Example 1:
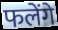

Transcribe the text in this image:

फलेंगे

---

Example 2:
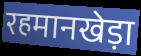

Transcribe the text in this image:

रहमानखेड़ा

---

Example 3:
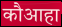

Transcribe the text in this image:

कौआहा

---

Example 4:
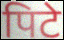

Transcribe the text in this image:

पिटे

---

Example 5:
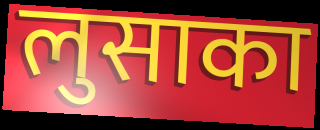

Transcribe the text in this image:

लुसाका